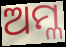
ଅମ୍ଳ